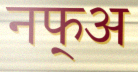
नफ्अ